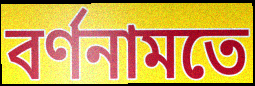
বর্ণনামতে